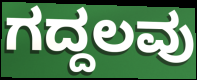
ಗದ್ದಲವು